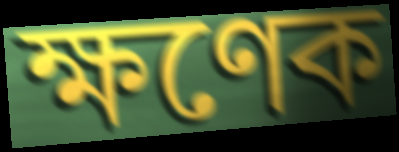
ক্ষণেক